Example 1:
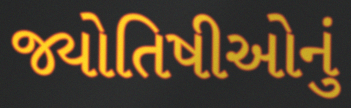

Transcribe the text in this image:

જ્યોતિષીઓનું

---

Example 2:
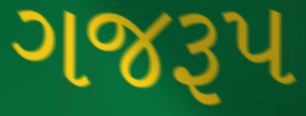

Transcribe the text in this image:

ગજરૂપ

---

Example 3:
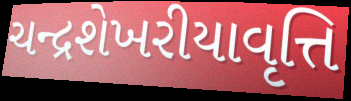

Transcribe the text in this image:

ચન્દ્રશેખરીયાવૃત્તિ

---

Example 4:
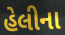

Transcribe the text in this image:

હેલીના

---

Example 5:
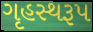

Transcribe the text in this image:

ગૃહસ્થરૂપ